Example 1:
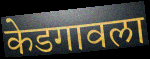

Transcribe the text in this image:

केडगावला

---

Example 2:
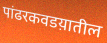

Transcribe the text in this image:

पांढरकवडय़ातील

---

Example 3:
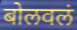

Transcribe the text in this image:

बोलवलं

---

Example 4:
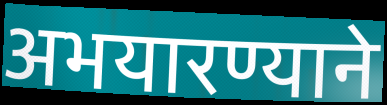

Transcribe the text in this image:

अभयारण्याने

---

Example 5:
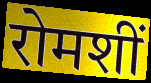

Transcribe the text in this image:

रोमशीं